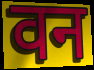
वन